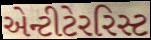
એન્ટીટેરરિસ્ટ